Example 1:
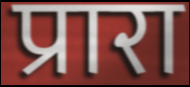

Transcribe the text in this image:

प्रारा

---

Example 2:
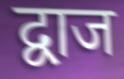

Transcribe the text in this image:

द्वाज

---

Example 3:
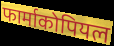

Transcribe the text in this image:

फार्माकोपियल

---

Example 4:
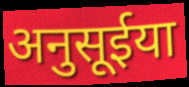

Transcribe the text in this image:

अनुसूईया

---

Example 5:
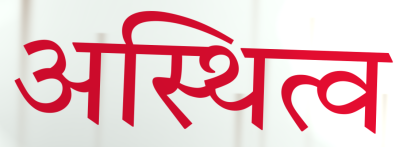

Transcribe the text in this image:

अस्थित्व